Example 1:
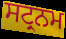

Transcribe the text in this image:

ਸਟ੍ਰਨਮ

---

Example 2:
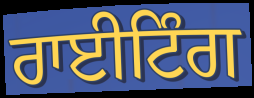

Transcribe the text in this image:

ਰਾਈਟਿੰਗ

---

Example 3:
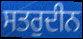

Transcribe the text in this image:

ਸਤਰੁਦੀਨ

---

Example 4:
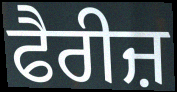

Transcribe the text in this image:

ਫੈਰੀਜ਼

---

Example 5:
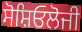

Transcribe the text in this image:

ਸੋਸ਼ਿਓਲੋਜੀ